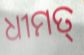
ଧୀମତ୍